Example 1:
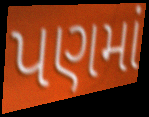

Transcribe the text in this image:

પણમાં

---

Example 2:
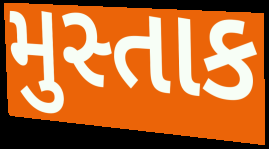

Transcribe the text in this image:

મુસ્તાક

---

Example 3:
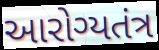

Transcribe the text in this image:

આરોગ્યતંત્ર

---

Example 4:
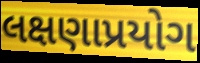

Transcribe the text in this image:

લક્ષણાપ્રયોગ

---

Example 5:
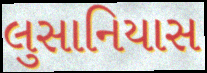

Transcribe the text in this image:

લુસાનિયાસ